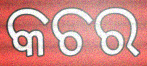
କଚର